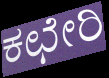
ಕಛೇರಿ